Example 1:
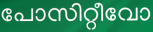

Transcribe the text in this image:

പോസിറ്റീവോ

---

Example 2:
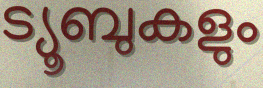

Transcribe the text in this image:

ട്യൂബുകളും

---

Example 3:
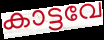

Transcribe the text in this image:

കാട്ടവേ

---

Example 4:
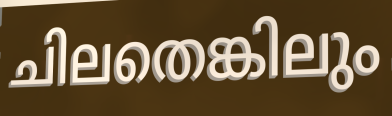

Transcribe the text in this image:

ചിലതെങ്കിലും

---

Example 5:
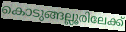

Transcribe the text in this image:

കൊടുങ്ങല്ലൂരിലേക്ക്